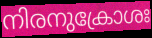
നിരനുക്രോശഃ